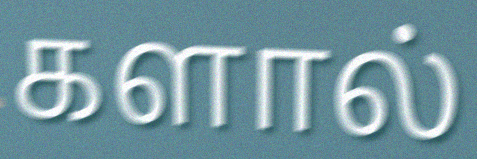
களால்